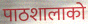
पाठशालाको